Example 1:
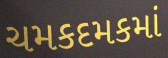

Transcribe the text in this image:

ચમકદમકમાં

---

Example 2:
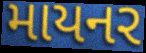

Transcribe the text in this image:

માયનર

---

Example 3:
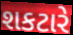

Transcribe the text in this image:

શકટારે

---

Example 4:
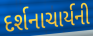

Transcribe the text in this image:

દર્શનાચાર્યની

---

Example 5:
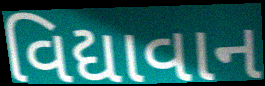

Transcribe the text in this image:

વિદ્યાવાન